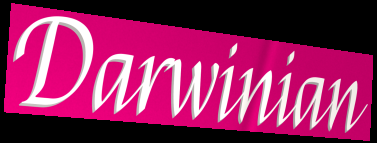
Darwinian